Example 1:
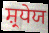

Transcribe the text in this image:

ਸ਼੍ਰਧੇਯ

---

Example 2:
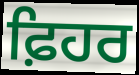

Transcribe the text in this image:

ਫ਼ਿਹਰ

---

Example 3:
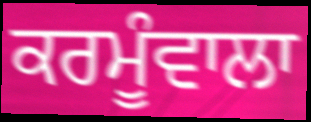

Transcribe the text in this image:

ਕਰਮੂੰਵਾਲਾ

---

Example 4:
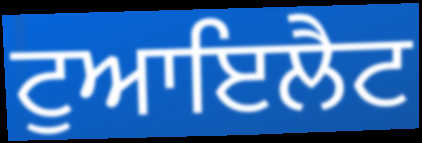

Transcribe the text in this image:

ਟੁਆਇਲੈਟ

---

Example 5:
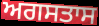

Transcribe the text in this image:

ਅਗਸਤਾਸ